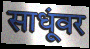
साधूंवर